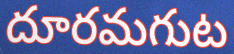
దూరమగుట